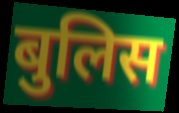
बुलिस